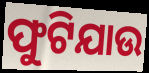
ଫୁଟିଯାଉ